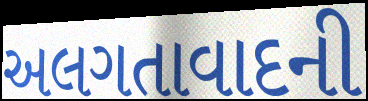
અલગતાવાદની